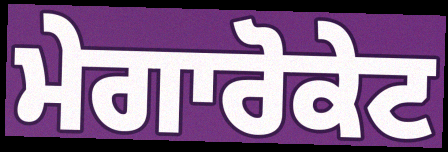
ਮੇਗਾਰੋਕੇਟ